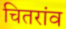
चितरांव